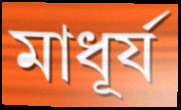
মাধূর্য